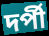
দর্পী